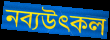
নব্যউৎকল